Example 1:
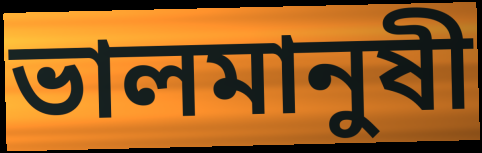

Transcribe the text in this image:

ভালমানুষী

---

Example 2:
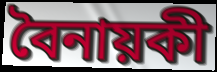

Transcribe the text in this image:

বৈনায়কী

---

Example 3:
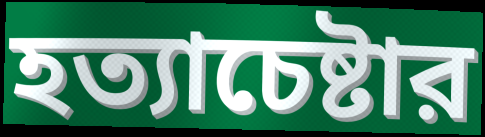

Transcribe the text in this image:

হত্যাচেষ্টার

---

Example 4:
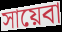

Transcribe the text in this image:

সায়েবা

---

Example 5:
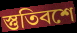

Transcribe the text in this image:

স্তুতিবশে